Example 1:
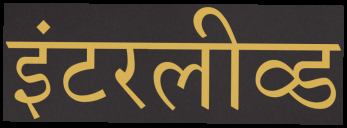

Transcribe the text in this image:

इंटरलीव्ड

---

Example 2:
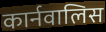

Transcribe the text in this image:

कार्नवालिस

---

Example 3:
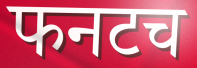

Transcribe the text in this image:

फनटच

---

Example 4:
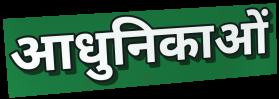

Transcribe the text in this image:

आधुनिकाओं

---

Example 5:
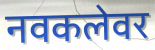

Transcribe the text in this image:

नवकलेवर